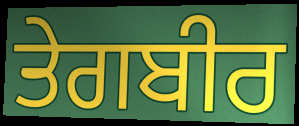
ਤੇਗਬੀਰ